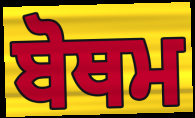
ਬੋਥਮ